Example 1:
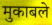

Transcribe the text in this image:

मुकाबले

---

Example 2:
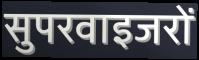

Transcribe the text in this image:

सुपरवाइजरों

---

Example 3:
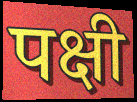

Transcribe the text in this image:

पक्षी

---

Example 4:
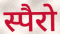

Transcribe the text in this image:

स्पैरो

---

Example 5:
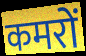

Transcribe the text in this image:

कमरों